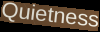
Quietness